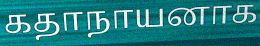
கதாநாயனாக